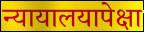
न्यायालयापेक्षा